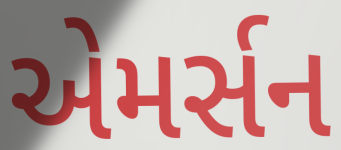
એમર્સન